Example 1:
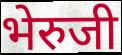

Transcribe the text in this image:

भेरुजी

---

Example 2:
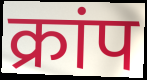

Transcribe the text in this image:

क्रांप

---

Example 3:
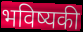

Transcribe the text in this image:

भविष्यकी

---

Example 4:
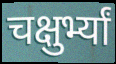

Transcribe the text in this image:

चक्षुर्भ्यां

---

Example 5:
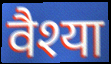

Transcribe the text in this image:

वैश्या